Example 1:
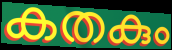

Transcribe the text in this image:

കതകും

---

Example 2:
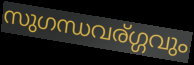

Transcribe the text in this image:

സുഗന്ധവര്ഗ്ഗവും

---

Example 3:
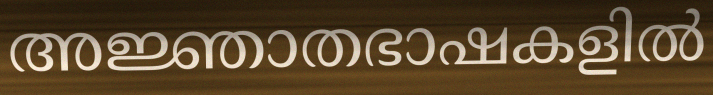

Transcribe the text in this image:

അജ്ഞാതഭാഷകളിൽ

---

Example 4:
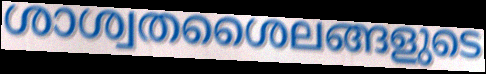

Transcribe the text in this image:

ശാശ്വതശൈലങ്ങളുടെ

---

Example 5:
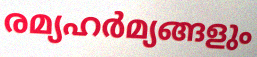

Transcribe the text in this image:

രമ്യഹർമ്യങ്ങളും